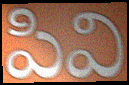
పివి